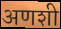
अणशी